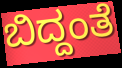
ಬಿದ್ದಂತೆ